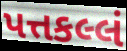
પત્તકલ્લં